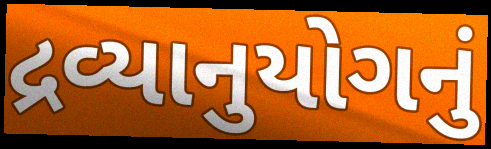
દ્રવ્યાનુયોગનું